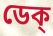
ডেক্